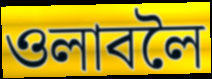
ওলাবলৈ